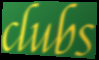
clubs